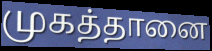
முகத்தானை